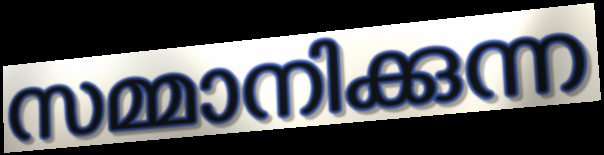
സമ്മാനിക്കുന്ന